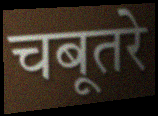
चबूतरे